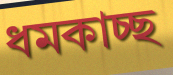
ধমকাচ্ছ